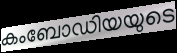
കംബോഡിയയുടെ